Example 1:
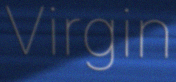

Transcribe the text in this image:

Virgin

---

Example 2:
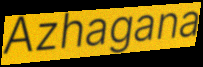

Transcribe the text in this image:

Azhagana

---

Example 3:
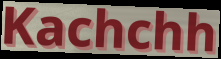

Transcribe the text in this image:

Kachchh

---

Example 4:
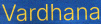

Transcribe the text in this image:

Vardhana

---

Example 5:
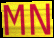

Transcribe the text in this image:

MN